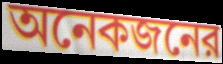
অনেকজনের